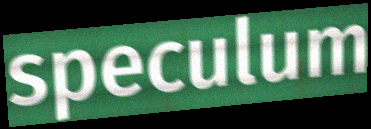
speculum